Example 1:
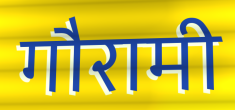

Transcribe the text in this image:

गौरामी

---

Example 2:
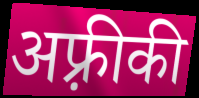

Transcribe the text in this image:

अफ़्रीकी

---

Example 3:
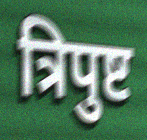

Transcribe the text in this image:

त्रिपुष्ट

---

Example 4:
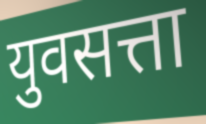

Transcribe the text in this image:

युवसत्ता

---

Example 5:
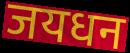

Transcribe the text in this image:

जयधन